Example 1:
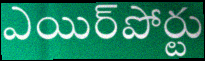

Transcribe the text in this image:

ఎయిర్‌పోర్టు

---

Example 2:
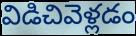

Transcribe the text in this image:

విడిచివెళ్లడం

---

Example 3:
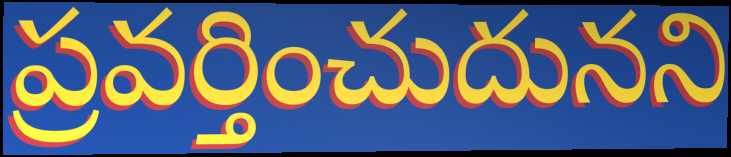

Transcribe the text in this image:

ప్రవర్తించుదునని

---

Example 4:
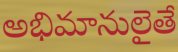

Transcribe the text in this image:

అభిమానులైతే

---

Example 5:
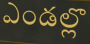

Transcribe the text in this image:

ఎండల్లొ